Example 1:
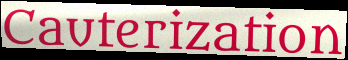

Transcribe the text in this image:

Cauterization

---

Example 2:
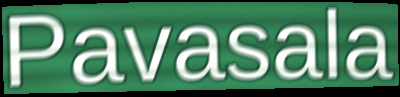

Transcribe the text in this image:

Pavasala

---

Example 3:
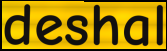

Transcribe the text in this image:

deshal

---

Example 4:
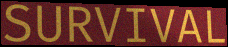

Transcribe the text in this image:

SURVIVAL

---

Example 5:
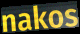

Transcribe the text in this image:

nakos